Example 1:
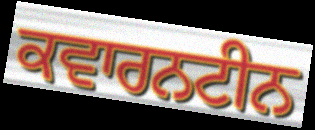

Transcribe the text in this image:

ਕਵਾਰਨਟੀਨ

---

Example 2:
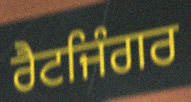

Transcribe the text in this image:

ਰੈਟਜਿੰਗਰ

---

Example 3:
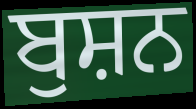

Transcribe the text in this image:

ਬੁਸ਼ਨ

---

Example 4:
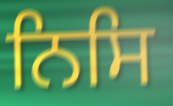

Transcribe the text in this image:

ਨਿਸਿ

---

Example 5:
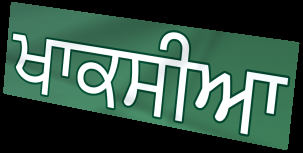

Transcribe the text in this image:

ਖਾਕਸੀਆ